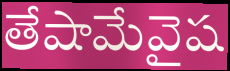
తేషామేవైష